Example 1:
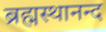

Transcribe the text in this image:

ब्रह्मस्थानन्द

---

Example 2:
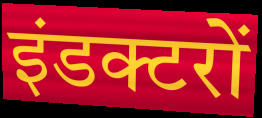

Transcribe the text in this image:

इंडक्टरों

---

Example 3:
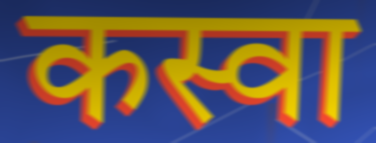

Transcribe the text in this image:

कस्वा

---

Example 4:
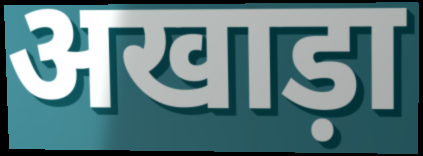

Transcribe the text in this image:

अखाड़ा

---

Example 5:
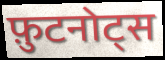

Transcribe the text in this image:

फ़ुटनोट्स